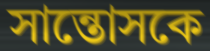
সান্তোসকে